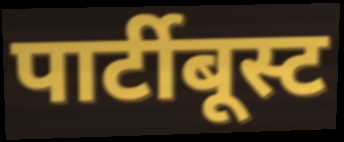
पार्टीबूस्ट